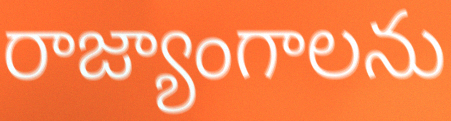
రాజ్యాంగాలను